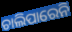
ଚାଲିପାରେନି